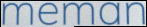
meman